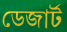
ডেজাৰ্ট